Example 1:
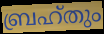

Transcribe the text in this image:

ബ്രഹ്തും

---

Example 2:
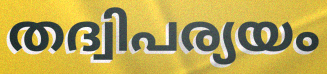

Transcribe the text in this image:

തദ്വിപര്യയം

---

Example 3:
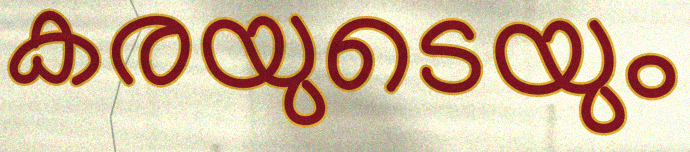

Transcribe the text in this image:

കരയുടെയും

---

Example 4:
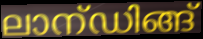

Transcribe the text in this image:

ലാന്ഡിങ്ങ്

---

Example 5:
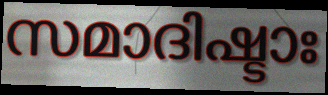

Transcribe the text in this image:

സമാദിഷ്ടാഃ